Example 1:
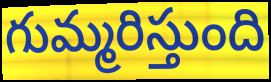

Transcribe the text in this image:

గుమ్మరిస్తుంది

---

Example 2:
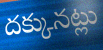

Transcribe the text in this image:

దక్కునట్లు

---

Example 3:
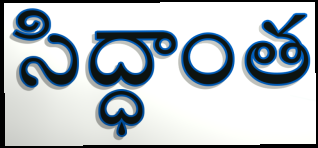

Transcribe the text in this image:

సిద్ధాంత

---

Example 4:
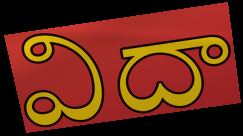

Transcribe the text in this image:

విదా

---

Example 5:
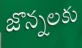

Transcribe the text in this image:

జొన్నలకు